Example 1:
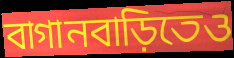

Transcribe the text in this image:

বাগানবাড়িতেও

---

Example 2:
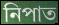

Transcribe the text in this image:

নিপাত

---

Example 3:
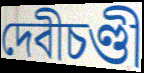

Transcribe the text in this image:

দেবীচণ্ডী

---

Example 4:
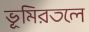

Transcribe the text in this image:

ভূমিরতলে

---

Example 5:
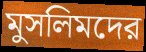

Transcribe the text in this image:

মুসলিমদের